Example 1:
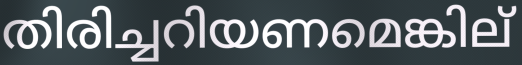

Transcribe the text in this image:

തിരിച്ചറിയണമെങ്കില്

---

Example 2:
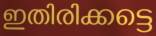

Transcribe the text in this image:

ഇതിരിക്കട്ടെ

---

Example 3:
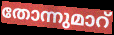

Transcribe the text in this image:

തോന്നുമാറ്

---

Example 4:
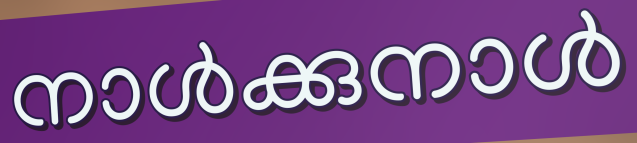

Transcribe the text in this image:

നാൾക്കുനാൾ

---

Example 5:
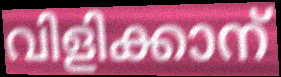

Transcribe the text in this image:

വിളിക്കാന്